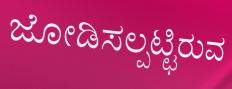
ಜೋಡಿಸಲ್ಪಟ್ಟಿರುವ